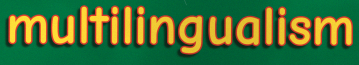
multilingualism